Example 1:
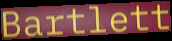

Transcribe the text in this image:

Bartlett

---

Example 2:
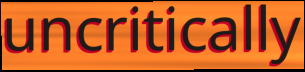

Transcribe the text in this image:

uncritically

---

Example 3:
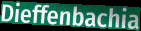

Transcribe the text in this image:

Dieffenbachia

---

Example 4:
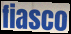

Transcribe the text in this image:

fiasco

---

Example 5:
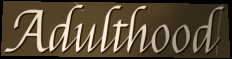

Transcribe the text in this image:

Adulthood